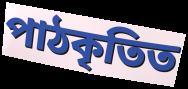
পাঠকৃতিত